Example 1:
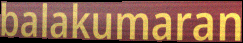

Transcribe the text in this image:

balakumaran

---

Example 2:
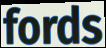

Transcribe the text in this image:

fords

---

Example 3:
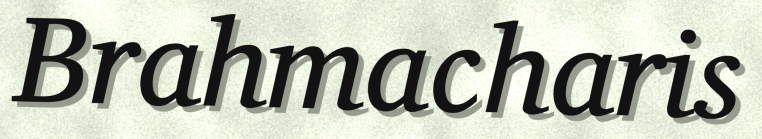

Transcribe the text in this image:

Brahmacharis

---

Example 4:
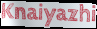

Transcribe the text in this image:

Knaiyazhi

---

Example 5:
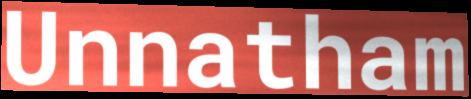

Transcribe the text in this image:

Unnatham